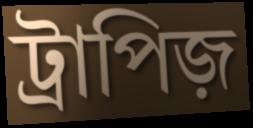
ট্রাপিজ়